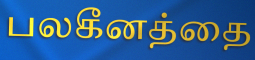
பலகீனத்தை